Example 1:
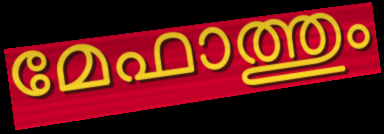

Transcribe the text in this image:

മേഫാത്തും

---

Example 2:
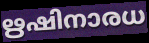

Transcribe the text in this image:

ഋഷിനാരധ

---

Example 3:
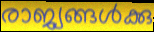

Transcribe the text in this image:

രാജ്യങ്ങൾക്കു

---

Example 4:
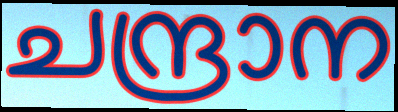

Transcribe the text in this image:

ചന്ദ്രാന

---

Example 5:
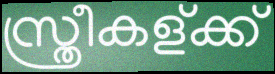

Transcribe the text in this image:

സ്ത്രീകള്ക്ക്